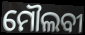
ମୌଲବୀ